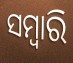
ସମ୍ବାରି